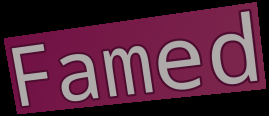
Famed